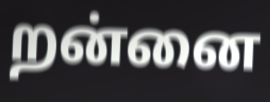
றன்னை